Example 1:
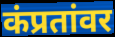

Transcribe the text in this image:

कंप्रतांवर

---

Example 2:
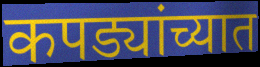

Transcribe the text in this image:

कपड्यांच्यात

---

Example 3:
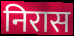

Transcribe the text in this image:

निरास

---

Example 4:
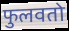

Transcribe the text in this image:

फुलवतो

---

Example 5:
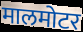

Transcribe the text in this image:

मालमोटर